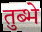
तुब्भे